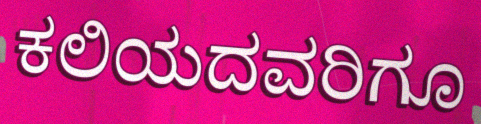
ಕಲಿಯದವರಿಗೂ